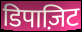
डिपाज़िट